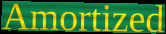
Amortized